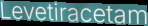
Levetiracetam